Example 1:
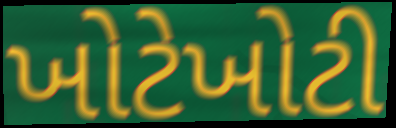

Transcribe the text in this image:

ખોટેખોટી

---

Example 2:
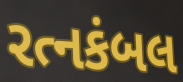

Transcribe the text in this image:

રત્નકંબલ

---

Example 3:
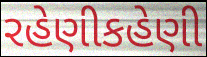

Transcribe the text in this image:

રહેણીકહેણી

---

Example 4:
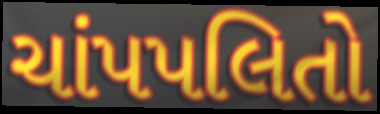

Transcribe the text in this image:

ચાંપપલિતો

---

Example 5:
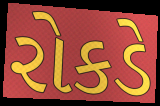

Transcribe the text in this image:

રોકડે